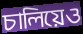
চালিয়েও